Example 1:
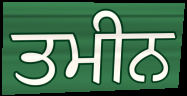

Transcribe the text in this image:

ਤਮੀਨ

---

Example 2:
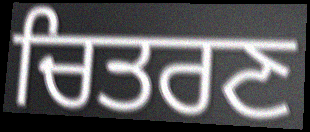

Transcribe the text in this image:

ਚਿਤਰਣ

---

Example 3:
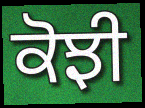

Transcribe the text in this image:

ਕੋਝੀ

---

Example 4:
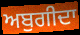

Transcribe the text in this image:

ਅਬੁਗੀਦਾ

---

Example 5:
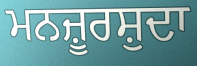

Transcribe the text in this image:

ਮਨਜ਼ੂਰਸ਼ੁਦਾ